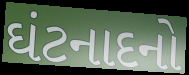
ઘંટનાદનો